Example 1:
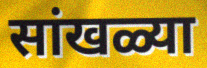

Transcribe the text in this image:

सांखळ्या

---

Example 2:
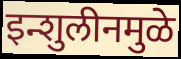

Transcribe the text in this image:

इन्शुलीनमुळे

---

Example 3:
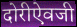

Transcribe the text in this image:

दोरीऐवजी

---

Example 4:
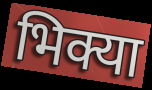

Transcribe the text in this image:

भिक्या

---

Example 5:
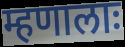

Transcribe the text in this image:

म्हणालाः